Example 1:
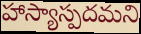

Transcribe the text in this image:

హాస్యాస్పదమని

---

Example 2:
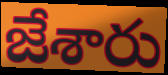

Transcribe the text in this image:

జేశారు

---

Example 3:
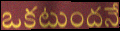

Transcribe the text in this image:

ఒకటుందనే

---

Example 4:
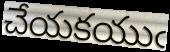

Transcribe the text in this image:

చేయకయుఁ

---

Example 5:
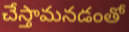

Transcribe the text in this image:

చేస్తామనడంతో